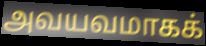
அவயவமாகக்